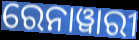
ରେନାୱାରୀ